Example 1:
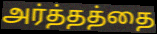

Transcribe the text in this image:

அர்த்தத்தை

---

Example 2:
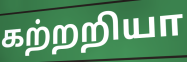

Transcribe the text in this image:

கற்றறியா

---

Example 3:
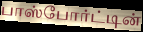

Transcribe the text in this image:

பாஸ்போர்ட்டின்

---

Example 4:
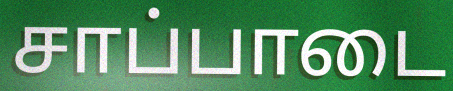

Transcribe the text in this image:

சாப்பாடை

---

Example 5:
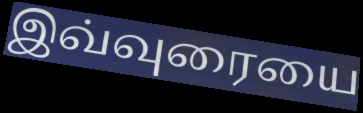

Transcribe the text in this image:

இவ்வுரையை